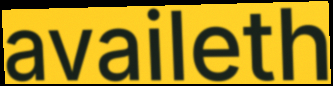
availeth